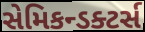
સેમિકન્ડક્ટર્સ